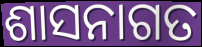
ଶାସନାଗତ